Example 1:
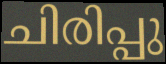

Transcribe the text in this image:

ചിരിപ്പു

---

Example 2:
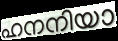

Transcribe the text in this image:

ഹനനിയാ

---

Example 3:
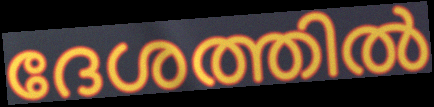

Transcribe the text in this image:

ദേശത്തിൽ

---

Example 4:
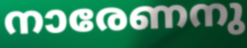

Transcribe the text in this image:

നാരേണനു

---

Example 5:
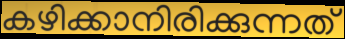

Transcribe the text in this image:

കഴിക്കാനിരിക്കുന്നത്